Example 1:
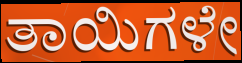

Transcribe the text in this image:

ತಾಯಿಗಳೇ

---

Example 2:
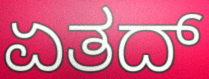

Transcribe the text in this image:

ಏತದ್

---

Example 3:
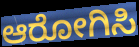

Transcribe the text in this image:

ಆರೋಗಿಸಿ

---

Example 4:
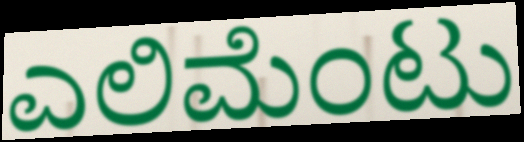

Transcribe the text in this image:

ಎಲಿಮೆಂಟು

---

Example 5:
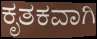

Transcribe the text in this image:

ಕೃತಕವಾಗಿ